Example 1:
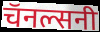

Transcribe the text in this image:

चॅनल्सनी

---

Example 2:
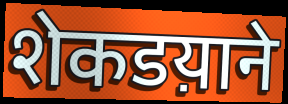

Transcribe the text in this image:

शेकडय़ाने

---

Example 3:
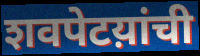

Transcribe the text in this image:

शवपेटय़ांची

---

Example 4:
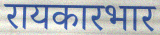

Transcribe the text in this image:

रायकारभार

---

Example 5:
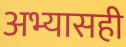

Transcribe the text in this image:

अभ्यासही